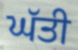
ਘੱਤੀ